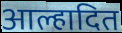
आल्हादित